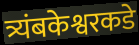
त्र्यंबकेश्वरकडे